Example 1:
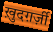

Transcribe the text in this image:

ख़ुदग़र्ज़ी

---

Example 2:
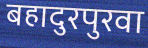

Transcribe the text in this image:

बहादुरपुरवा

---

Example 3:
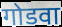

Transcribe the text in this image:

गोडवा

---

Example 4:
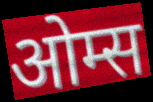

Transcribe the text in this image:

ओम्स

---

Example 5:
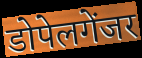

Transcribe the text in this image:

डोपेलगेंजर